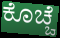
ಕೊಚ್ಚೆ